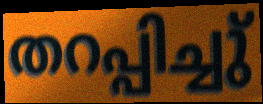
തറപ്പിച്ചു്